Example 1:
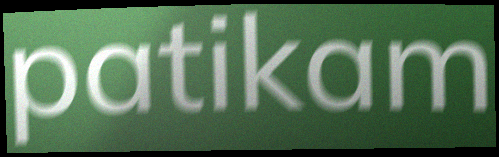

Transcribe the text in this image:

patikam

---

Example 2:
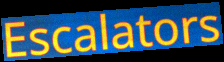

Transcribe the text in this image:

Escalators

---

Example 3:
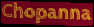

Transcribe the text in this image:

Chopanna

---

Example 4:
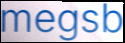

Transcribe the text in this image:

megsb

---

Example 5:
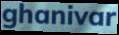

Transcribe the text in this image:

ghanivar